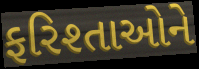
ફરિશ્તાઓને